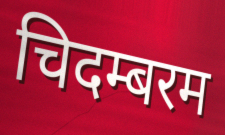
चिदम्बरम